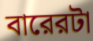
বারেরটা